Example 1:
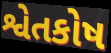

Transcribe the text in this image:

શ્વેતકોષ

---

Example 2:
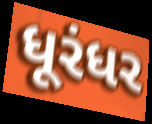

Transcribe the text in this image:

ધૂરંધર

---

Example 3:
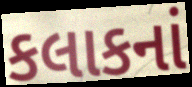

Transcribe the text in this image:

કલાકનાં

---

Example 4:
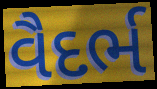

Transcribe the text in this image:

વૈદર્ભ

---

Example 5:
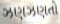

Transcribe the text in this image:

ઝણઝણતો